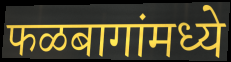
फळबागांमध्ये